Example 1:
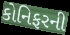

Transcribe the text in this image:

કોનિફરની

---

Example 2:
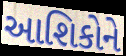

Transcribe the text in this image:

આશિકોને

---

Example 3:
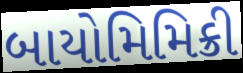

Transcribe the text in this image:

બાયોમિમિક્રી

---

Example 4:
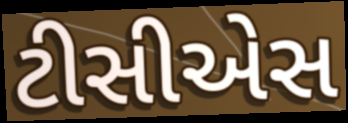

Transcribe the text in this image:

ટીસીએસ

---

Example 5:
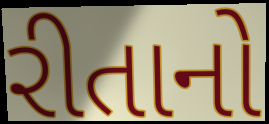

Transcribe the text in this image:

રીતાનો